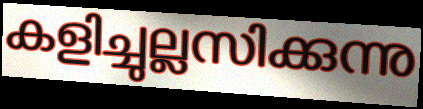
കളിച്ചുല്ലസിക്കുന്നു